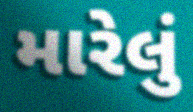
મારેલું